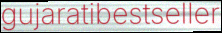
gujaratibestseller